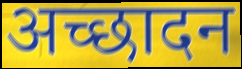
अच्छादन